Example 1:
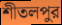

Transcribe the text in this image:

শীতলপুর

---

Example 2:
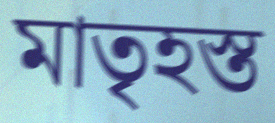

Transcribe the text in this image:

মাতৃহস্ত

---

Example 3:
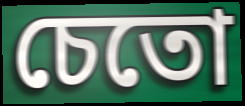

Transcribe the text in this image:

চেতো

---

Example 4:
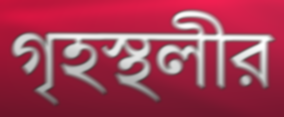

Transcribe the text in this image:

গৃহস্থলীর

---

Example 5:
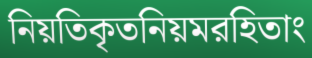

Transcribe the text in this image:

নিয়তিকৃতনিয়মরহিতাং